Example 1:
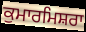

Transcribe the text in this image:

ਕੁਮਾਰਮਿਸ਼ਰਾ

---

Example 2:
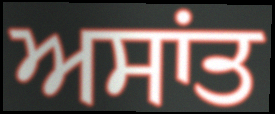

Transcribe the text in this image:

ਅਸਾਂਤ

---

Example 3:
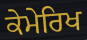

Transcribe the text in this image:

ਕੇਮੇਰਿਖ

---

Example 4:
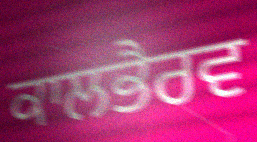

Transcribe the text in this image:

ਕਾਲਭੈਰਵ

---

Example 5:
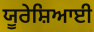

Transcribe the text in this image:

ਯੂਰੇਸ਼ਿਆਈ